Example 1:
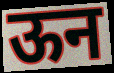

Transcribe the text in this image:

ऊन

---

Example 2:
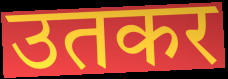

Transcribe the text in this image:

उतकर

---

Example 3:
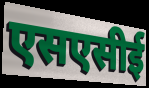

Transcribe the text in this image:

एसएसीई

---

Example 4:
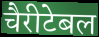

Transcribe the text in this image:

चैरीटेबल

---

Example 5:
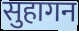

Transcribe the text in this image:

सुहागन